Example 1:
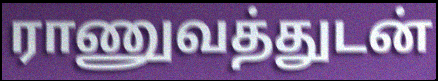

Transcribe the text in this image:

ராணுவத்துடன்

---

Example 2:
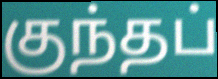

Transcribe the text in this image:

குந்தப்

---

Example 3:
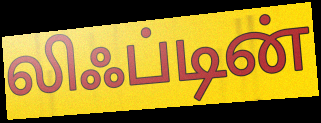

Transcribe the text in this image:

லிஃப்டின்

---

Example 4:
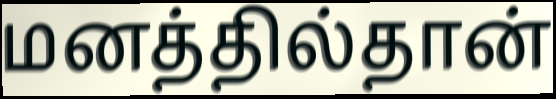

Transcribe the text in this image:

மனத்தில்தான்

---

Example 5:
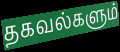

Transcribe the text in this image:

தகவல்களும்